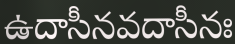
ఉదాసీనవదాసీనః